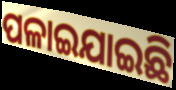
ପଳାଇଯାଇଛି